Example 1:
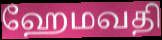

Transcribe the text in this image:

ஹேமவதி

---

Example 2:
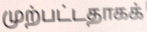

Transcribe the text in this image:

முற்பட்டதாகக்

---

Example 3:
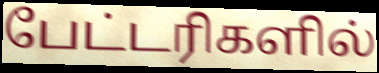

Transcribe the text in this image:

பேட்டரிகளில்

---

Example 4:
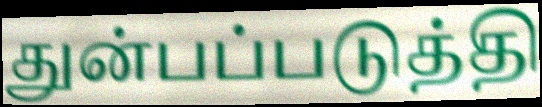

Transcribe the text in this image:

துன்பப்படுத்தி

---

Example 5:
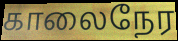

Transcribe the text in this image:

காலைநேர